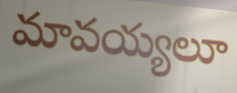
మావయ్యలూ